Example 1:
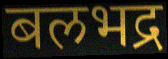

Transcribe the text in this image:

बलभद्र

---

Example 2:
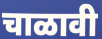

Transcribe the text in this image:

चाळावी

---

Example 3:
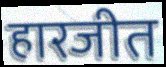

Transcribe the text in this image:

हारजीत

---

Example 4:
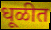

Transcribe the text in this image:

धूळीत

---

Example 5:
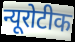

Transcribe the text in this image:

न्यूरोटीक